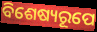
ବିଶେଷ୍ୟରୂପେ